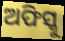
ଅଫିସ୍କୁ